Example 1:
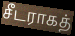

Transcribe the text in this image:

சீடராகத்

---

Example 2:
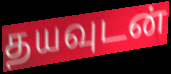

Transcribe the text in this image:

தயவுடன்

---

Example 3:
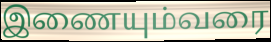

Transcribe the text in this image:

இணையும்வரை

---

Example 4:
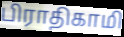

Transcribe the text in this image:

பிராதிகாமி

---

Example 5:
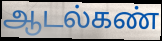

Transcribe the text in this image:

ஆடல்கண்